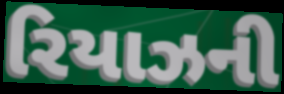
રિયાઝની